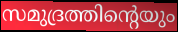
സമുദ്രത്തിന്റെയും